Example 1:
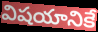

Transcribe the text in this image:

విషయానికే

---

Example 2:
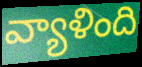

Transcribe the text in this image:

వ్యాళింది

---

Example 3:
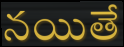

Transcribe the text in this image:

నయితే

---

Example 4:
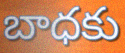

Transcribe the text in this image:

బాధకు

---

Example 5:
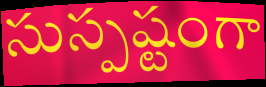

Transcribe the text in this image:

సుస్పష్టంగా